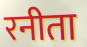
रनीता